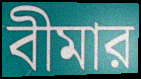
বীমার